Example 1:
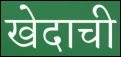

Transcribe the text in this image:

खेदाची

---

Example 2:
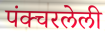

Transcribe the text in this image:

पंक्चरलेली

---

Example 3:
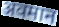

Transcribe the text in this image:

अवमान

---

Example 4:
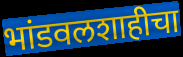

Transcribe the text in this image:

भांडवलशाहीचा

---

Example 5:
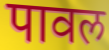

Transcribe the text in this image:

पावल